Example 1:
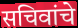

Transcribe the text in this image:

सचिवांचे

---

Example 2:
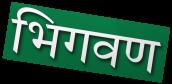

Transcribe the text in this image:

भिगवण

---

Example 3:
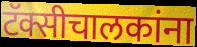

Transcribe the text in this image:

टॅक्सीचालकांना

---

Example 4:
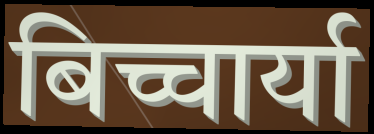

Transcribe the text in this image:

बिच्चार्या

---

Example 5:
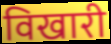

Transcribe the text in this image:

विखारी